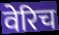
वेरिच